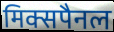
मिक्सपैनल